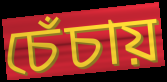
চেঁচায়